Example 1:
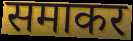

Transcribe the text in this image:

समाकर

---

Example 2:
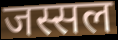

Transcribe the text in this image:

जस्सल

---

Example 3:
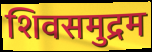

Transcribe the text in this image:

शिवसमुद्रम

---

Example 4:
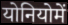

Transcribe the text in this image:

योनियोमें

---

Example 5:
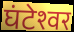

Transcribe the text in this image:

घंटेश्वर